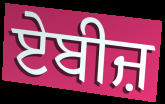
ਏਬੀਜ਼